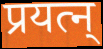
प्रयत्न्